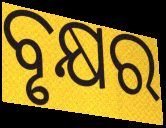
ବୃକ୍ଷର